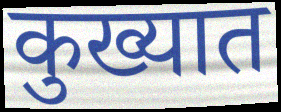
कुख्यात